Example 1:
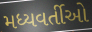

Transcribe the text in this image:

મધ્યવર્તીઓ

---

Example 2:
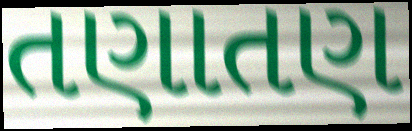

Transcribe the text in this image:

તણાતણ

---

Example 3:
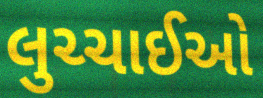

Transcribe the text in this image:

લુચ્ચાઈઓ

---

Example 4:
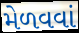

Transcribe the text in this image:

મેળવવાં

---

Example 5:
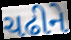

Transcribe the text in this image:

ચઢીને